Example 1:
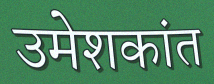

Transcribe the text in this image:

उमेशकांत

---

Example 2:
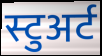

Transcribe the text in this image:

स्टुअर्ट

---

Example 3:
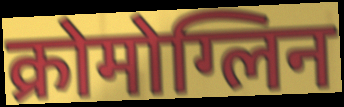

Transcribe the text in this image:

क्रोमोग्लिन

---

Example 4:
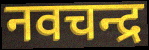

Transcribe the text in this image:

नवचन्द्र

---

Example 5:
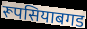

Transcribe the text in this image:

रूपसियाबगड